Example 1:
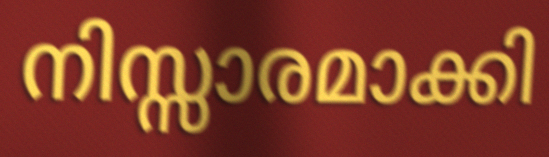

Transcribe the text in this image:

നിസ്സാരമാക്കി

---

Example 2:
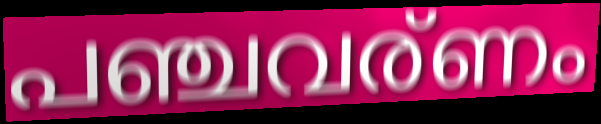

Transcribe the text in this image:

പഞ്ചവര്ണം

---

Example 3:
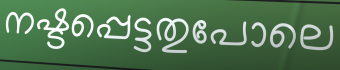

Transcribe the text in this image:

നഷ്ടപ്പെട്ടതുപോലെ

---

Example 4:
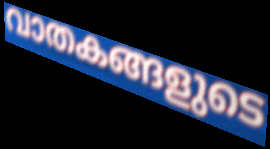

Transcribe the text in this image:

വാതകങ്ങളുടെ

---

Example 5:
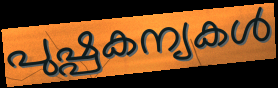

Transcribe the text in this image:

പുഷ്പകന്യകൾ